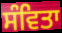
ਸੰਵਿਤਾ